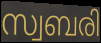
സ്വബരി